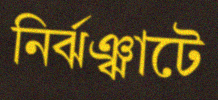
নির্ঝঞ্ঝাটে